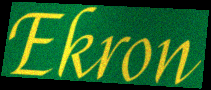
Ekron